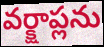
వర్క్షాప్లను